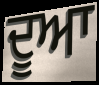
ਦੂਆ